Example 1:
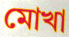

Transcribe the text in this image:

মোখা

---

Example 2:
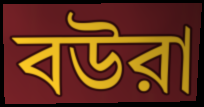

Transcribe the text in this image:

বউরা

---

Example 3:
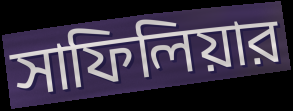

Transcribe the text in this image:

সাফিলিয়ার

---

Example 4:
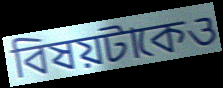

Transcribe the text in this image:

বিষয়টাকেও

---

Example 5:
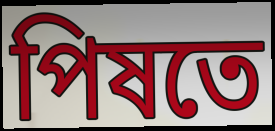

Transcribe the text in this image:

পিষতে